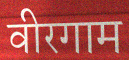
वीरगाम